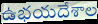
ఉభయదేశాల